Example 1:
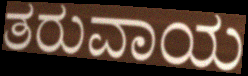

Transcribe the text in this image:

ತರುವಾಯ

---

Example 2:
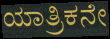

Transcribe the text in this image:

ಯಾತ್ರಿಕನೇ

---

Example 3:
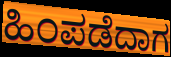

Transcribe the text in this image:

ಹಿಂಪಡೆದಾಗ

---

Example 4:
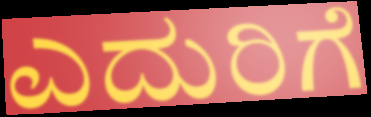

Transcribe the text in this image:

ಎದುರಿಗೆ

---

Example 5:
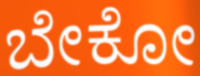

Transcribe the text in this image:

ಬೇಕೋ